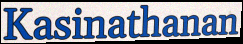
Kasinathanan